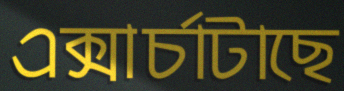
এক্সাৰ্চাটাছে